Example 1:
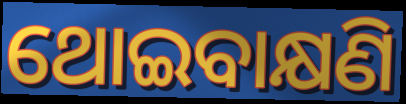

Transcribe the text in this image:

ଥୋଇବାକ୍ଷଣି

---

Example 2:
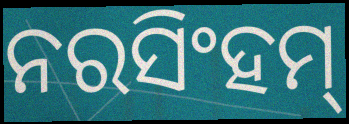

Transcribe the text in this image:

ନରସିଂହମ୍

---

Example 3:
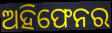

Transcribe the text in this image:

ଅହିଫେନର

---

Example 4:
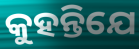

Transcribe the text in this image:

କୁହନ୍ତିଯେ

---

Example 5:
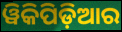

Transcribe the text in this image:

ୱିକିପିଡ଼ିଆର